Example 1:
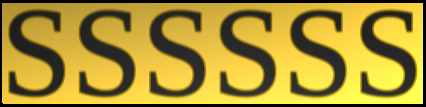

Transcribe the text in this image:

SSSSSS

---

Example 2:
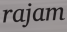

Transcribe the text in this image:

rajam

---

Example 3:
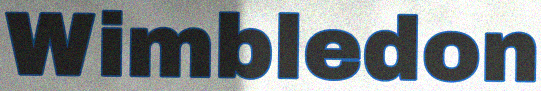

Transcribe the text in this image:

Wimbledon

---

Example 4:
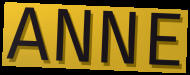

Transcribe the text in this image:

ANNE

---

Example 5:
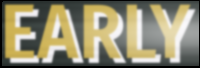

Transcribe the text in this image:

EARLY